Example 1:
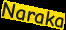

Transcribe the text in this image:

Naraka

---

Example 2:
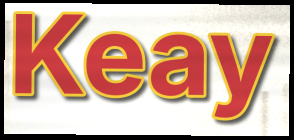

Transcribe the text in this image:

Keay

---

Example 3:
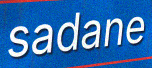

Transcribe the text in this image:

sadane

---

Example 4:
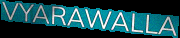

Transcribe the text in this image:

VYARAWALLA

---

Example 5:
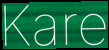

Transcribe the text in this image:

Kare